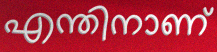
എന്തിനാണ്